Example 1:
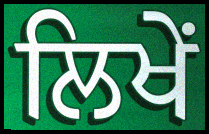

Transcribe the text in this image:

ਲਿਖੇਂ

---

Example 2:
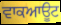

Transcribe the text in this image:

ਵਾਕਆਊਟ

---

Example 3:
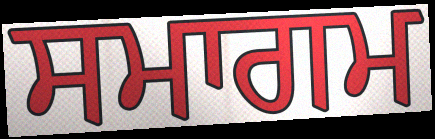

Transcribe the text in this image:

ਸਮਾਗਮ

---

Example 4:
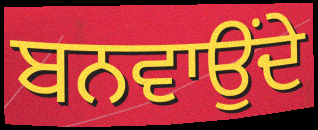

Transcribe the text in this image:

ਬਨਵਾਉਂਦੇ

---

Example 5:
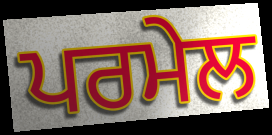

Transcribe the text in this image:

ਪਰਮੇਲ